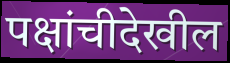
पक्षांचीदेखील